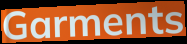
Garments